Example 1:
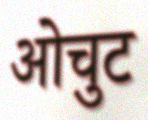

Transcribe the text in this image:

ओचुट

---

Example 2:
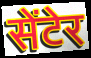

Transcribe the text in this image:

सेंटेर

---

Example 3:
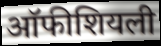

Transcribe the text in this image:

ऑफीशियली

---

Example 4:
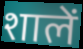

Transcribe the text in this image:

शालें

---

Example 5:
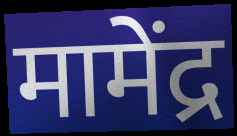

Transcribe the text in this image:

मामेंद्र